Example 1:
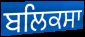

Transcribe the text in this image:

ਬਲਿਕਸਾ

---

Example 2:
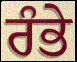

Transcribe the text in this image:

ਰੰਭੇ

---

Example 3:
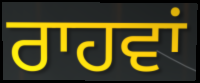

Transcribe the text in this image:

ਰਾਹਵਾਂ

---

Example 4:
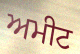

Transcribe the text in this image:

ਅਮੀਟ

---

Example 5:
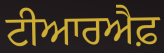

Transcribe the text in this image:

ਟੀਆਰਐਫ਼